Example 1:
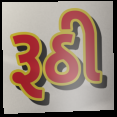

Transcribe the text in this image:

રૂઠી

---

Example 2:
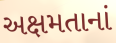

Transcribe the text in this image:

અક્ષમતાનાં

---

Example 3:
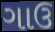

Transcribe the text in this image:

ગાઉ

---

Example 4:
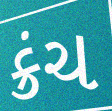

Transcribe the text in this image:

ક્રંચ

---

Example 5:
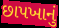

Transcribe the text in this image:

છાપખાનું